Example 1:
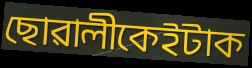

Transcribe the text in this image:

ছোৱালীকেইটাক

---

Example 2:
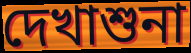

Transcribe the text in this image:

দেখাশুনা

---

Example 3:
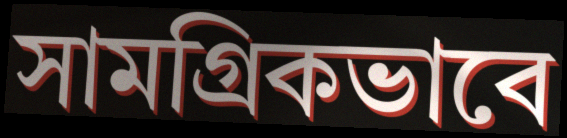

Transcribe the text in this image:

সামগ্ৰিকভাবে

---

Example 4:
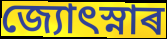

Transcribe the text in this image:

জ্যোৎস্নাৰ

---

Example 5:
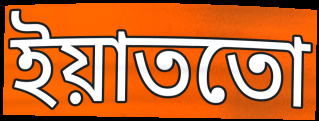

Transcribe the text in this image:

ইয়াততো